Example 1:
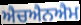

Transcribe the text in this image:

ਐਚਐਨਐਮ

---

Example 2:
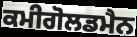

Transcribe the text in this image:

ਕਮੀਗੋਲਡਮੈਨ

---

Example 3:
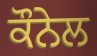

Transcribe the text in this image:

ਕੌਨੇਲ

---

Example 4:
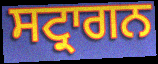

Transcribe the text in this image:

ਸਟ੍ਰਾਗਨ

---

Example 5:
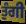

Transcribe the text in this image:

ਤੁੰਗੀ